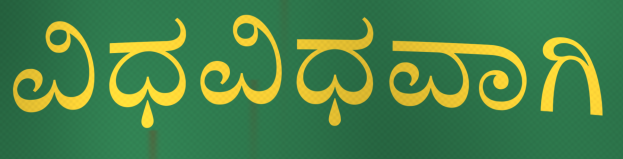
ವಿಧವಿಧವಾಗಿ